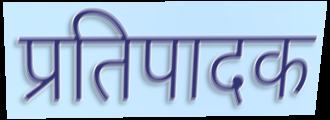
प्रतिपादक